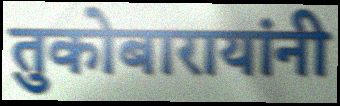
तुकोबारायांनी